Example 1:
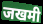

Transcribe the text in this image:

जखमी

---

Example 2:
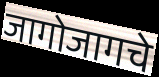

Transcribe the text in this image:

जागोजागचे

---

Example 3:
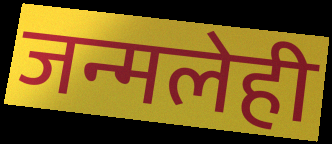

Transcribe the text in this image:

जन्मलेही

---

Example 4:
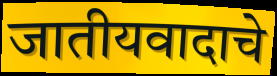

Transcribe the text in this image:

जातीयवादाचे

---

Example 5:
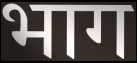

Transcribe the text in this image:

भाग